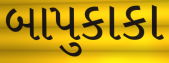
બાપુકાકા